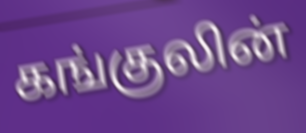
கங்குலின்